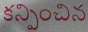
కన్పించిన